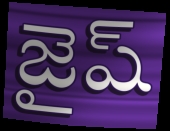
జైష్